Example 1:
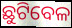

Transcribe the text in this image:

ଛୁଟିବେଳ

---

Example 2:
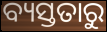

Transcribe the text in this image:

ବ୍ୟସ୍ତତାରୁ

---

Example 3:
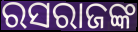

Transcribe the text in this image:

ରସରାଜଙ୍କ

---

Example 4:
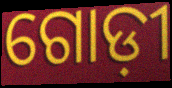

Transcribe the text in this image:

ଗୋଡ଼ୀ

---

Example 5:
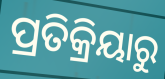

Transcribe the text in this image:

ପ୍ରତିକ୍ରିୟାରୁ